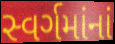
સ્વર્ગમાંનાં